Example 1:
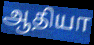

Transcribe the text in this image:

ஆதியா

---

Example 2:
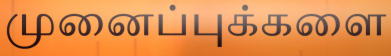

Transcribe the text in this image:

முனைப்புக்களை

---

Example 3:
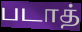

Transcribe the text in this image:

படாத்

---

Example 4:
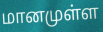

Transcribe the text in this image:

மானமுள்ள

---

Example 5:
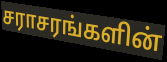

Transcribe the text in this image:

சராசரங்களின்